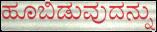
ಹೂಬಿಡುವುದನ್ನು